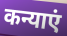
कन्याएं